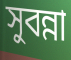
সুবন্না